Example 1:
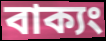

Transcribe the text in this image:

বাক্যং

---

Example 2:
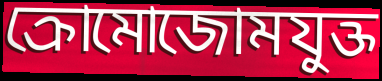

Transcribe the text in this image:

ক্রোমোজোমযুক্ত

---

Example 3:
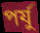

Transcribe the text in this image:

পর্যু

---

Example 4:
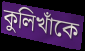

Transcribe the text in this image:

কুলিখাঁকে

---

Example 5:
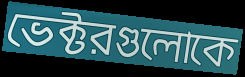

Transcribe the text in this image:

ভেক্টরগুলোকে